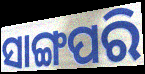
ସାଙ୍ଗପରି